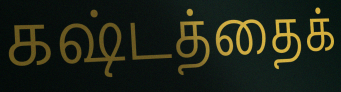
கஷ்டத்தைக்